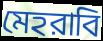
মেহরাবি